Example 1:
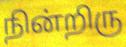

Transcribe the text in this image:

நின்றிரு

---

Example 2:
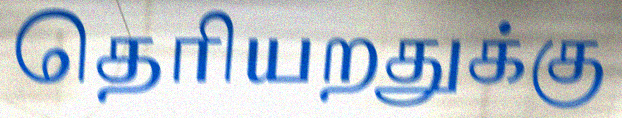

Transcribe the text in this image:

தெரியறதுக்கு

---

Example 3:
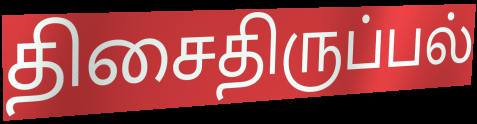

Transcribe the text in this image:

திசைதிருப்பல்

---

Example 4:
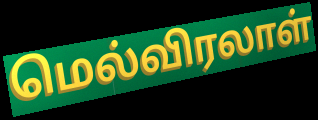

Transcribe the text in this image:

மெல்விரலாள்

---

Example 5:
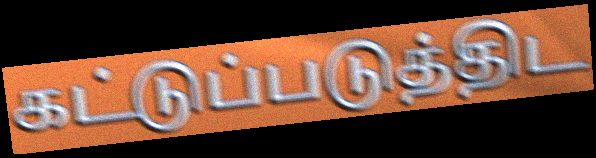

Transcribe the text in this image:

கட்டுப்படுத்திட